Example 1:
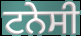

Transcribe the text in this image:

ਟਨੇਸੀ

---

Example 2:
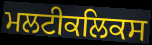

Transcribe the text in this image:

ਮਲਟੀਕਲਿਕਸ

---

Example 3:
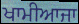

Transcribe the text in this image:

ਖਾਮੀਆਜਾ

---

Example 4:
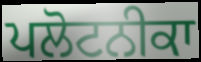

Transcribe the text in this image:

ਪਲੋਟਨੀਕਾ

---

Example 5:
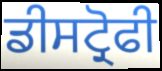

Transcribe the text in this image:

ਡੀਸਟ੍ਰੋਫੀ